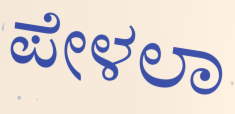
ಪೇಳಲಾ